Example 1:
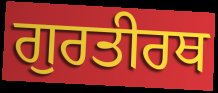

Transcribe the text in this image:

ਗੁਰਤੀਰਥ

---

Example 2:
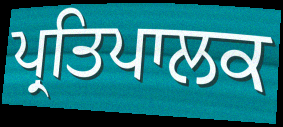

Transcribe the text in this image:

ਪ੍ਰਤਿਪਾਲਕ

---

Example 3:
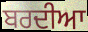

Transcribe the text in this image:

ਬਰਦੀਆ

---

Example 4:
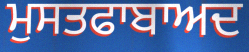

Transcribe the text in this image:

ਮੁਸਤਫਾਬਾਅਦ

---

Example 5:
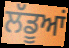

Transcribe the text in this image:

ਲੱਡੂਆਂ